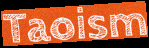
Taoism